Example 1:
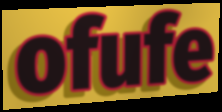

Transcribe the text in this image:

ofufe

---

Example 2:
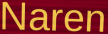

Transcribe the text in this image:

Naren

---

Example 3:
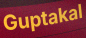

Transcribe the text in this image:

Guptakal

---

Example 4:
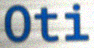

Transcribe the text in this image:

Oti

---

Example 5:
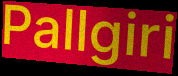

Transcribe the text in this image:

Pallgiri